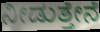
ನೀಡುತ್ತೇನೆ